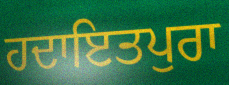
ਹਦਾਇਤਪੁਰਾ